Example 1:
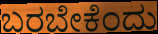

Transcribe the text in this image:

ಬರಬೇಕೆಂದು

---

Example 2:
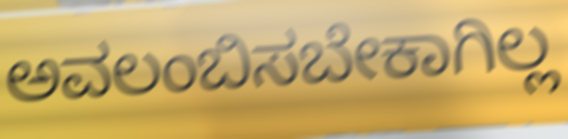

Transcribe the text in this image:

ಅವಲಂಬಿಸಬೇಕಾಗಿಲ್ಲ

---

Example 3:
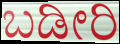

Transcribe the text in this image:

ಬಡೀರಿ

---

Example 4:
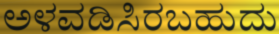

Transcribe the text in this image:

ಅಳವಡಿಸಿರಬಹುದು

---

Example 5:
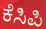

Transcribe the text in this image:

ಕೆಸಿಪಿ